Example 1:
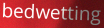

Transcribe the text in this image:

bedwetting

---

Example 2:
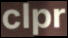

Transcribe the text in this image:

clpr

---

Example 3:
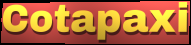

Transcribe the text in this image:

Cotapaxi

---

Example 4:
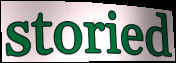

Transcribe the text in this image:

storied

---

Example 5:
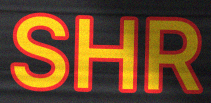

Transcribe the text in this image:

SHR